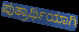
ಪುತ್ರಾರ್ಥಿಯಾಗಿ